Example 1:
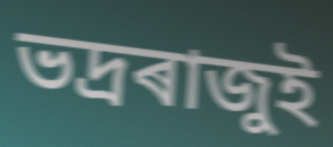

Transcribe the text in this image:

ভদ্ৰৰাজুই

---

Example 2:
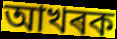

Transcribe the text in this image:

আখৰক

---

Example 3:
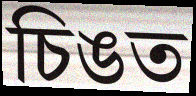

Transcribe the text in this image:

চিঙত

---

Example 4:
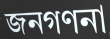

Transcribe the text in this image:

জনগণনা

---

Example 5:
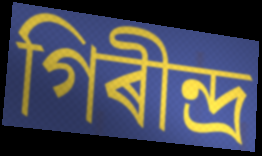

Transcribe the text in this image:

গিৰীন্দ্ৰ